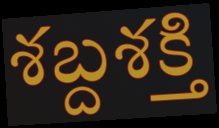
శబ్దశక్తి